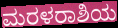
ಮರಳರಾಶಿಯ